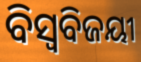
ବିସ୍ଵବିଜୟୀ